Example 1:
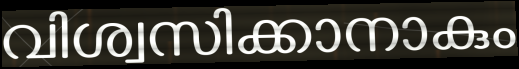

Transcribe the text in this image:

വിശ്വസിക്കാനാകും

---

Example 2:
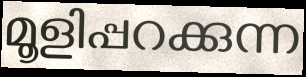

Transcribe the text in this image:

മൂളിപ്പറക്കുന്ന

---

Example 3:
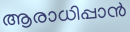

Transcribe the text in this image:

ആരാധിപ്പാൻ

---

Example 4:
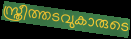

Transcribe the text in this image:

സ്ത്രീത്തടവുകാരുടെ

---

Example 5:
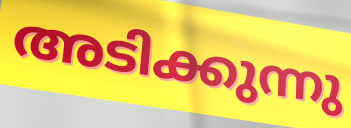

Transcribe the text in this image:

അടിക്കുന്നു